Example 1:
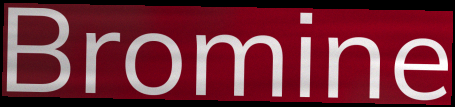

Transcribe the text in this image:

Bromine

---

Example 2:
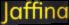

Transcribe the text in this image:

Jaffina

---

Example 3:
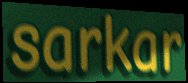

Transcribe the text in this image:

sarkar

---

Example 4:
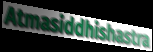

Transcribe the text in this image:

Atmasiddhishastra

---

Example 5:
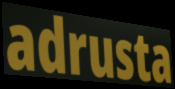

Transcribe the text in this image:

adrusta